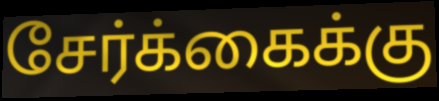
சேர்க்கைக்கு